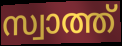
സ്വാത്ത്